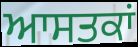
ਆਸਤਕਾਂ